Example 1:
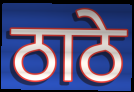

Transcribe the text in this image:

ठाठे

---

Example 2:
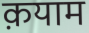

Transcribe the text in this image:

क़याम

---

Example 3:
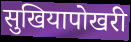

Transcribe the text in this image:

सुखियापोखरी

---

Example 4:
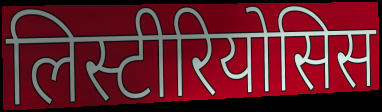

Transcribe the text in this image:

लिस्टीरियोसिस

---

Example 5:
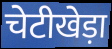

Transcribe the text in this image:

चेटीखेड़ा